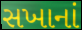
સખાનાં